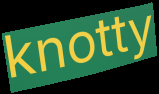
knotty